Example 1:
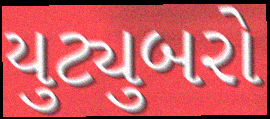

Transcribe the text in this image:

યુટ્યુબરો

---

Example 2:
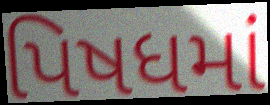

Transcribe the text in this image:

પિષધમાં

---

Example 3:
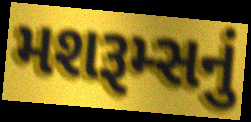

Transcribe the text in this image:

મશરૂમ્સનું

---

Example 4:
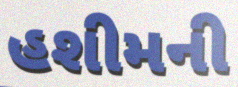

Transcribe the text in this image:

હશીમની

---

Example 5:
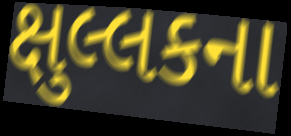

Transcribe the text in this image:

ક્ષુલ્લકના